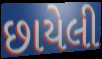
છાયેલી